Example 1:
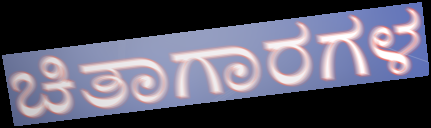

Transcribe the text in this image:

ಚಿತಾಗಾರಗಳ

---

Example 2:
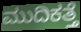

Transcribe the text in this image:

ಮುದಿಕತ್ತೆ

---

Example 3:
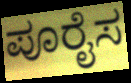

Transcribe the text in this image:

ಪೂರೈಸ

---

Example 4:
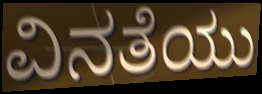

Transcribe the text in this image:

ವಿನತೆಯು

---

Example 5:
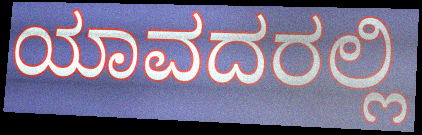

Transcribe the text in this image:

ಯಾವದರಲ್ಲಿ